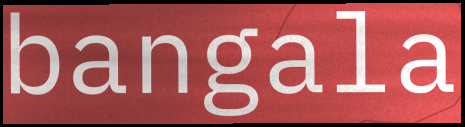
bangala